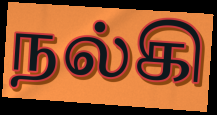
நல்கி